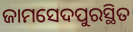
ଜାମସେଦପୁରସ୍ଥିତ